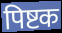
पिष्टक